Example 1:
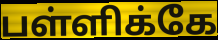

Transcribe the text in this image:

பள்ளிக்கே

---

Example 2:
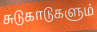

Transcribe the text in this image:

சுடுகாடுகளும்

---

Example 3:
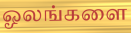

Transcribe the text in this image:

ஓலங்களை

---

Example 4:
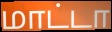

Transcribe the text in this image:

மாட்டா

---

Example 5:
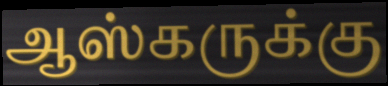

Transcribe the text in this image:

ஆஸ்கருக்கு